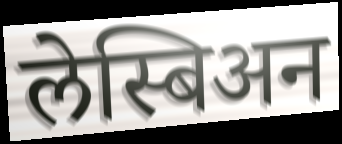
लेस्बिअन